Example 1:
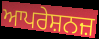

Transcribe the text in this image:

ਆਪਰੇਸ਼ਨਜ਼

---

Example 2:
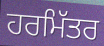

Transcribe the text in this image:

ਹਰਮਿੱਤਰ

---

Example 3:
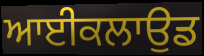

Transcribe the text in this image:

ਆਈਕਲਾਉਡ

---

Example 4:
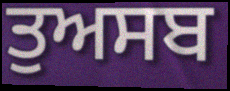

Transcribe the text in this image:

ਤੁਅਸਬ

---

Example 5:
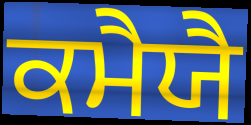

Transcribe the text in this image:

ਕਮੈਯੈ